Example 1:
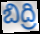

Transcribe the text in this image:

బిద్రి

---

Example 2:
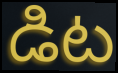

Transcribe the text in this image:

డిట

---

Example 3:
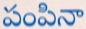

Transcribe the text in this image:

పంపినా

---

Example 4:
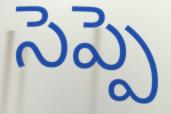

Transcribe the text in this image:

సెప్పె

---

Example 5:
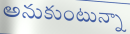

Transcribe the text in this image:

అనుకుంటున్నా